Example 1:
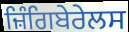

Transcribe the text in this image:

ਜ਼ਿੰਗਿਬੇਰੇਲਸ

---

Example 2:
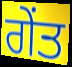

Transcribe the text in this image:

ਗੇਂਤ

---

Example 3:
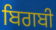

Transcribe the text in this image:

ਬਿਗਬੀ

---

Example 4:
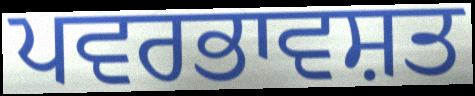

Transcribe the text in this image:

ਪਵਰਭਾਵਸ਼ਤ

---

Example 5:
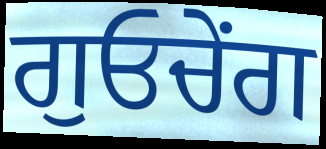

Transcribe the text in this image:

ਗੁਓਚੇਂਗ